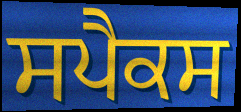
ਸਪੈਕਸ